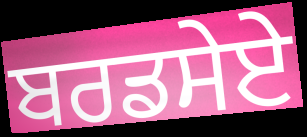
ਬਰਡਸੇਏ